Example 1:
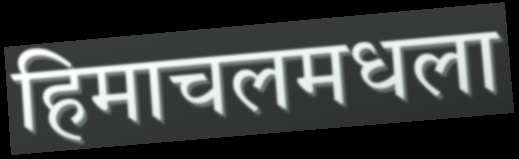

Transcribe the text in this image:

हिमाचलमधला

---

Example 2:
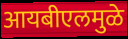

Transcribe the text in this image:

आयबीएलमुळे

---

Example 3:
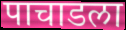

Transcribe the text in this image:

पाचाडला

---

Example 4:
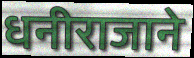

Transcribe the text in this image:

धनीराजाने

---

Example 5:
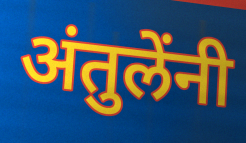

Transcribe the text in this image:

अंतुलेंनी